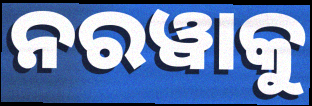
ନରୱାକୁ